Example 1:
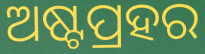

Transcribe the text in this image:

ଅଷ୍ଟପ୍ରହର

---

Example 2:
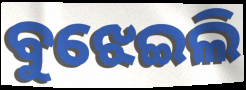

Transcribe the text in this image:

ବୁଝେଇଲି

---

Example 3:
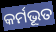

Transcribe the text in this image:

କର୍ମଭୂତ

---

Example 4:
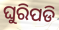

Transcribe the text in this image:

ଘୁରିପଡି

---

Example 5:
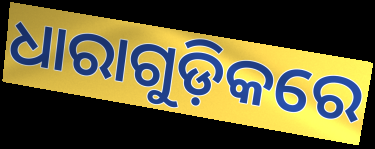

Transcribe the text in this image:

ଧାରାଗୁଡ଼ିକରେ